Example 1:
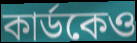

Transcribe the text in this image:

কার্ডকেও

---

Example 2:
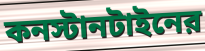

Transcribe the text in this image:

কনস্টানটাইনের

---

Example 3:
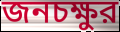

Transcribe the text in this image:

জনচক্ষুর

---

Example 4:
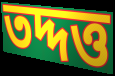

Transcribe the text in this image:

তদ্দত্ত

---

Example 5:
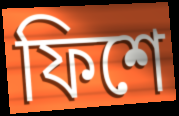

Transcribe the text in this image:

ফিশে